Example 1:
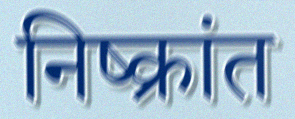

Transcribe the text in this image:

निष्क्रांत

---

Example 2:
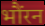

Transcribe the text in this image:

भौंरन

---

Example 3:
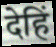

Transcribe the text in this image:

देहिं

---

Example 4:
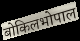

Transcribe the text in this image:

बोकिलभोपाल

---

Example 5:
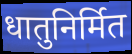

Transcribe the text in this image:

धातुनिर्मित